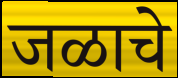
जळाचे